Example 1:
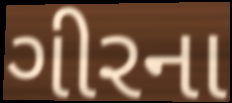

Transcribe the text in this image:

ગીરના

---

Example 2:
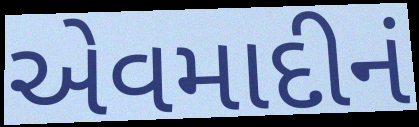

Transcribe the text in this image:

એવમાદીનં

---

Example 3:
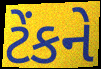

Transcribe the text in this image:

ટેંકને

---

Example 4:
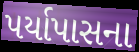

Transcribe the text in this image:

પર્યાપાસના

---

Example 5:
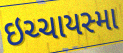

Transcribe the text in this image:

ઇચ્ચાયસ્મા